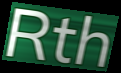
Rth